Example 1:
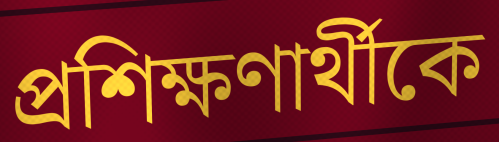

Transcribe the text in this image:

প্রশিক্ষণার্থীকে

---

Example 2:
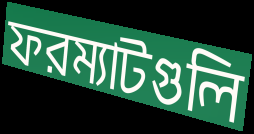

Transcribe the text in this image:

ফরম্যাটগুলি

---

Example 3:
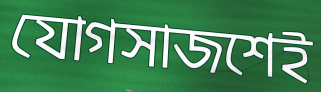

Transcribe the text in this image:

যোগসাজশেই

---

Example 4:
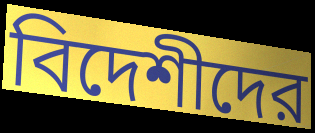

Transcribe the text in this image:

বিদেশীদের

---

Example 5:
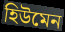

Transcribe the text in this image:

হিউমেন